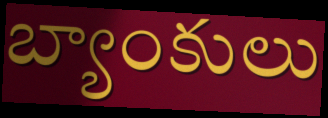
బ్యాంకులు